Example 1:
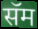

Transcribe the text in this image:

सॅम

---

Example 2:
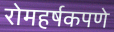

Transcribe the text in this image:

रोमहर्षकपणे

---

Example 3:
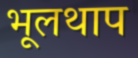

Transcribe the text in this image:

भूलथाप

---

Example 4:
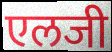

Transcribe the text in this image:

एलजी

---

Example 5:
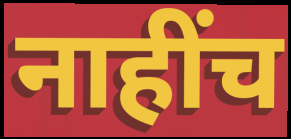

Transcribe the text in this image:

नाहींच